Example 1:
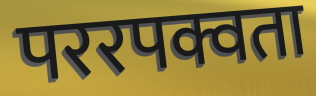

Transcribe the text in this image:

पररपक्वता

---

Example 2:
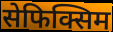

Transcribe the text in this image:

सेफिक्सिम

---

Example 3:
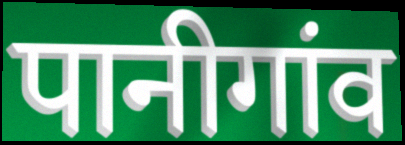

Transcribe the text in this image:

पानीगांव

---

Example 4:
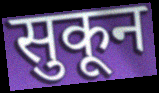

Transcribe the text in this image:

सुकून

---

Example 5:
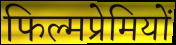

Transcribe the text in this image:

फिल्मप्रेमियों